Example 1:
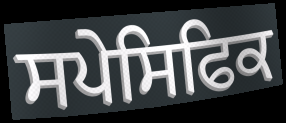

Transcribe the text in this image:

ਸਪੇਸਿਫਿਕ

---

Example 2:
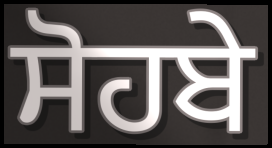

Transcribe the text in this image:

ਸੋਹਬੇ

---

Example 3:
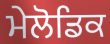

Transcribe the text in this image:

ਮੇਲੋਡਿਕ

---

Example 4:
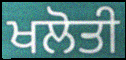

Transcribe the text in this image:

ਖਲੋਤੀ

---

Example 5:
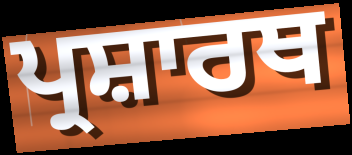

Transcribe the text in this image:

ਪ੍ਰਸ਼ਾਰਥ